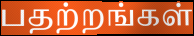
பதற்றங்கள்